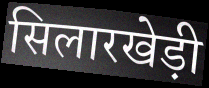
सिलारखेड़ी